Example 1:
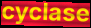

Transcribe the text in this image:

cyclase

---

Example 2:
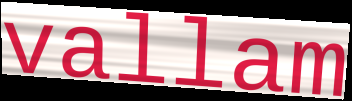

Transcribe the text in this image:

vallam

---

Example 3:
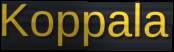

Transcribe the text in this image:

Koppala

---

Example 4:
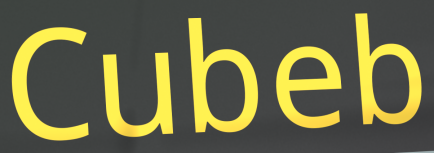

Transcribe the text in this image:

Cubeb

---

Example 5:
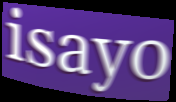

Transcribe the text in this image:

isayo